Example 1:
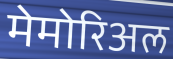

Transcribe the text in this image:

मेमोरिअल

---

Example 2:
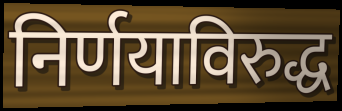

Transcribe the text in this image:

निर्णयाविरुद्ध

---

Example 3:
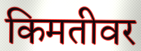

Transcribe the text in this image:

किमतीवर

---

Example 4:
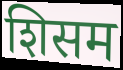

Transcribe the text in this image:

शिसम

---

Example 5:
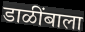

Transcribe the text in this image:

डाळींबाला